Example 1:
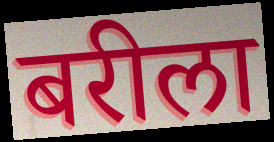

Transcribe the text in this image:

बरीला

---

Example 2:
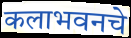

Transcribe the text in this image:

कलाभवनचे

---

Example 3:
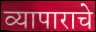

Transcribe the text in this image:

व्यापाराचे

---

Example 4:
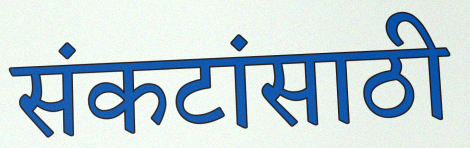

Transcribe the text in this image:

संकटांसाठी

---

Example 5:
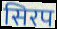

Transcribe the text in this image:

सिरप